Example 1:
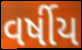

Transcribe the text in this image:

વર્ષીય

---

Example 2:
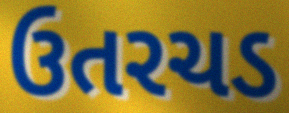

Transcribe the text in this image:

ઉતરચડ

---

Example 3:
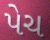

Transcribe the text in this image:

પેચ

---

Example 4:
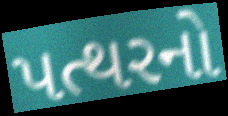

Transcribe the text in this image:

પત્થરનો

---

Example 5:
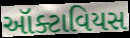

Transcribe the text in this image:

ઑક્ટાવિયસ